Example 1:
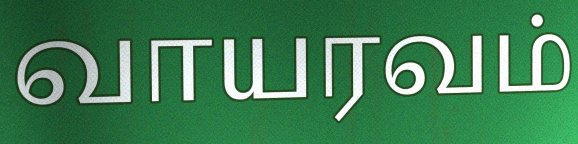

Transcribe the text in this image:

வாயரவம்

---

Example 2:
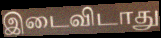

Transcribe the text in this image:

இடைவிடாது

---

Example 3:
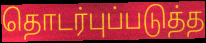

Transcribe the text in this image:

தொடர்புப்படுத்த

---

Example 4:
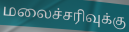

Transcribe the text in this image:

மலைச்சரிவுக்கு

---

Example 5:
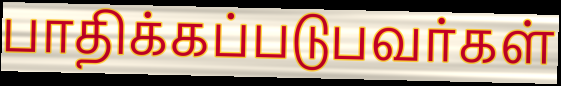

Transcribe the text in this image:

பாதிக்கப்படுபவர்கள்